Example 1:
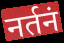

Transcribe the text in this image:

नर्तनं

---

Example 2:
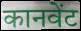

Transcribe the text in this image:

कानवेंट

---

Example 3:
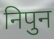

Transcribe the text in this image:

निपुन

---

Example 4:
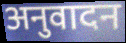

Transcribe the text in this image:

अनुवादन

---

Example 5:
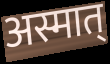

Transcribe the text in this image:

अस्मात्